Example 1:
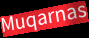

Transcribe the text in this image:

Muqarnas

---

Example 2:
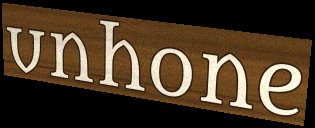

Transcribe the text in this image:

unhone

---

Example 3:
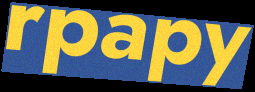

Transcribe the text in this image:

rpapy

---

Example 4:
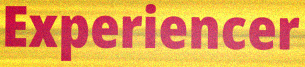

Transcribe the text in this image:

Experiencer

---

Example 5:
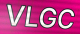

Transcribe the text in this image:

VLGC